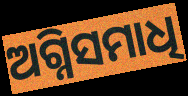
ଅଗ୍ନିସମାଧି